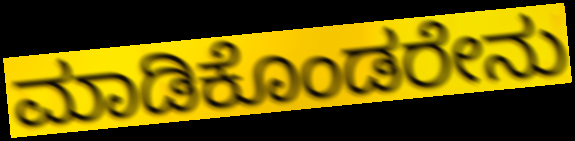
ಮಾಡಿಕೊಂಡರೇನು